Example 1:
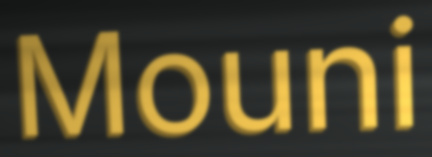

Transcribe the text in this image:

Mouni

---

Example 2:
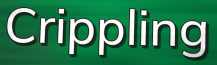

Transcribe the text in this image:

Crippling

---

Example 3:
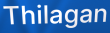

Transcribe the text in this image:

Thilagan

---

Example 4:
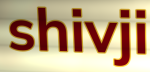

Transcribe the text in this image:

shivji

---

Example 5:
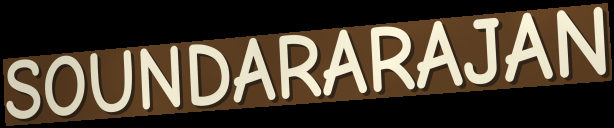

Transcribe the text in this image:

SOUNDARARAJAN